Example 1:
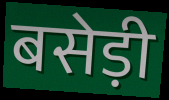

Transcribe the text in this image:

बसेड़ी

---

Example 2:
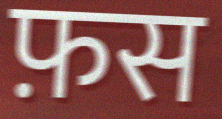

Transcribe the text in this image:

फ़स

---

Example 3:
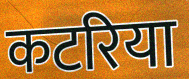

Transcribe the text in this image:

कटरिया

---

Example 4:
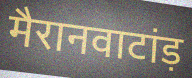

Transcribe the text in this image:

मैरानवाटांड़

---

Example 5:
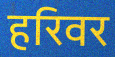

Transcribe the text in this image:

हरिवर